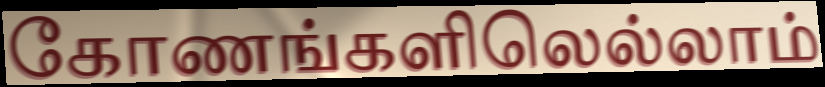
கோணங்களிலெல்லாம்